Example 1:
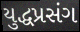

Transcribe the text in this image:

યુદ્ધપ્રસંગ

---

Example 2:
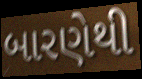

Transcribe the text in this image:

બારણેથી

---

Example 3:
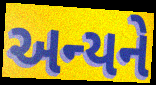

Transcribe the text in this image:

અન્યને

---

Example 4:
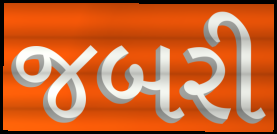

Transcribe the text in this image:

જબરી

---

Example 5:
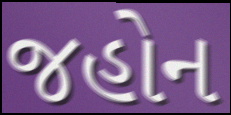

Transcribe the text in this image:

જહોન